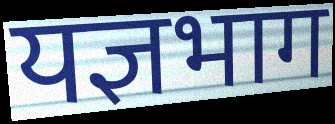
यज्ञभाग